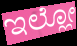
ಇಲ್ಲೋ